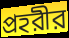
প্রহরীর